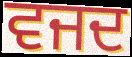
ਵਜਦ